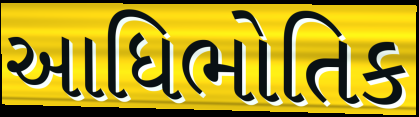
આધિભોતિક